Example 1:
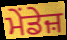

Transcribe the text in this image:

ਮੇਂਡੇਜ਼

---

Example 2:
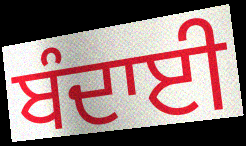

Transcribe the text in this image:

ਬੰਦਾਈ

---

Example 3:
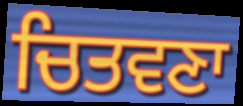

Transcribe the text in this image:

ਚਿਤਵਣਾ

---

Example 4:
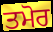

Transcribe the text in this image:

ਤਮੋਰ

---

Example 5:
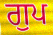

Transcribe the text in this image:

ਗੁਪ